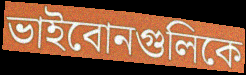
ভাইবোনগুলিকে